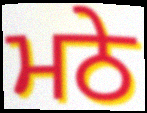
ਮਠੇ